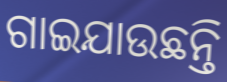
ଗାଇଯାଉଛନ୍ତି